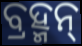
ବ୍ରହ୍ମନ୍